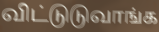
விட்டுடுவாங்க